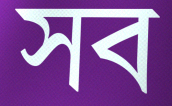
সব